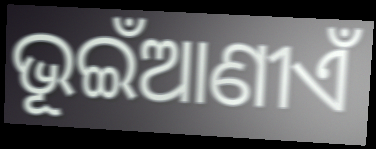
ଭୂଇଁଆଣୀଏଁ